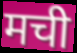
मची